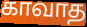
காவாத